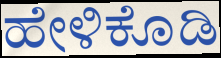
ಹೇಳಿಕೊಡಿ